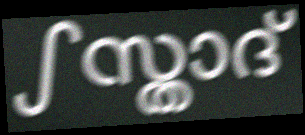
ഽസ്താദ്